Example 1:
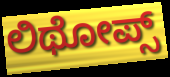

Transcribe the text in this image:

ಲಿಥೋಪ್ಸ್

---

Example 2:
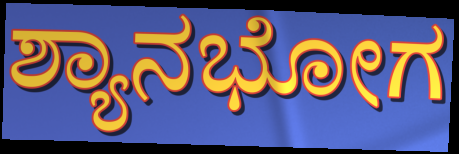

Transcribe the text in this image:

ಶ್ಯಾನಭೋಗ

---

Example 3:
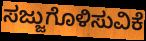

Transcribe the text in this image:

ಸಜ್ಜುಗೊಳಿಸುವಿಕೆ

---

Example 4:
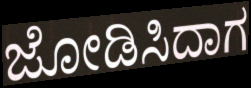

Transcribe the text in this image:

ಜೋಡಿಸಿದಾಗ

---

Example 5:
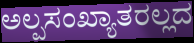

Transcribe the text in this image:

ಅಲ್ಪಸಂಖ್ಯಾತರಲ್ಲದ